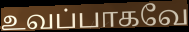
உவப்பாகவே